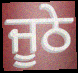
ਜੂਠੇ